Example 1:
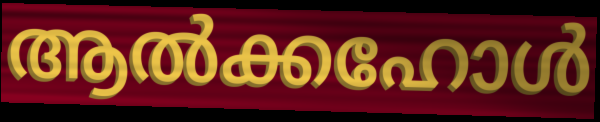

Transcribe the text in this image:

ആൽക്കഹോൾ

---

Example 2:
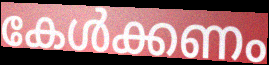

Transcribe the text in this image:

കേൾക്കണം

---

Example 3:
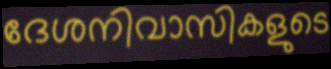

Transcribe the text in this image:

ദേശനിവാസികളുടെ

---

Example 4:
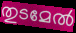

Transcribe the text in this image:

തുടമേൽ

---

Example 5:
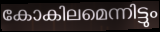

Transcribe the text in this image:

കോകിലമെന്നിട്ടും